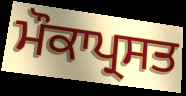
ਮੌਕਾਪ੍ਰਸਤ